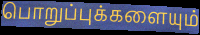
பொறுப்புக்களையும்